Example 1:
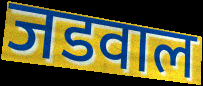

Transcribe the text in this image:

जडवाल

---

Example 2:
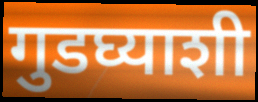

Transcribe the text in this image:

गुडघ्याशी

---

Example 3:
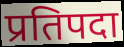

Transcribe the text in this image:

प्रतिपदा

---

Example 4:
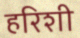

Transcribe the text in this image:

हरिशी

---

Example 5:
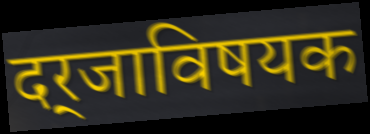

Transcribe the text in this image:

दर्जाविषयक